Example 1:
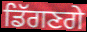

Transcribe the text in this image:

ਡਿੱਗਣਗੇ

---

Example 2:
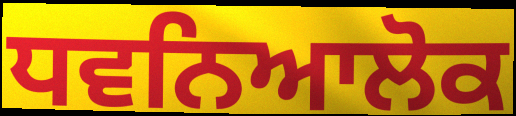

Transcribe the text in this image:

ਧਵਨਿਆਲੋਕ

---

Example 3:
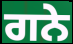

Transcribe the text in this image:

ਗਨੇ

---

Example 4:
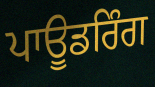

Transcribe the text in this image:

ਪਾਊਡਰਿੰਗ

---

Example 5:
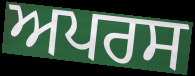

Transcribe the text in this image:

ਅਪਰਸ